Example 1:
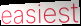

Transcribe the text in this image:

easiest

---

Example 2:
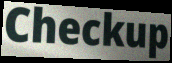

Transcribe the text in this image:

Checkup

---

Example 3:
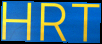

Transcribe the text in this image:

HRT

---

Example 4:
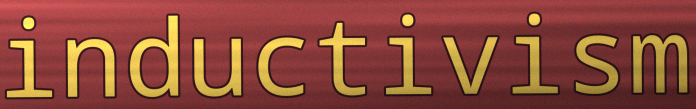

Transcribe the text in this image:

inductivism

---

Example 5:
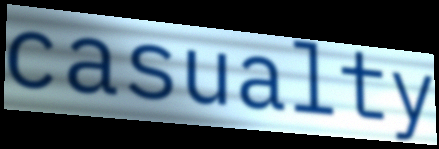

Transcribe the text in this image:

casualty